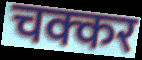
चक्‍कर